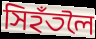
সিহঁতলৈ